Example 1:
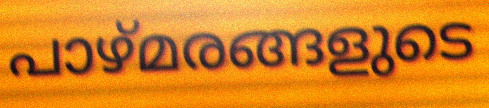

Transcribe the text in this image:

പാഴ്മരങ്ങളുടെ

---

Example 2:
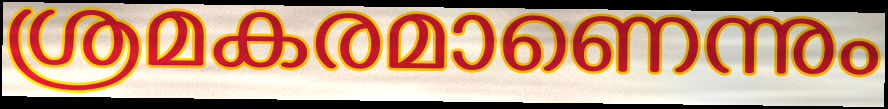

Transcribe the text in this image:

ശ്രമകരമാണെന്നും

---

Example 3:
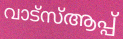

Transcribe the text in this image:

വാട്സ്ആപ്പ്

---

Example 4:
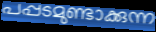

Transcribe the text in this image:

പപ്പടമുണ്ടാക്കുന്ന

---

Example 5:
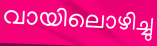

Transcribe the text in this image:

വായിലൊഴിച്ചു